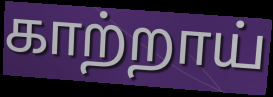
காற்றாய்